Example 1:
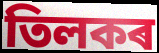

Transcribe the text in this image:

তিলকৰ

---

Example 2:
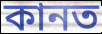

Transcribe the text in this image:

কানত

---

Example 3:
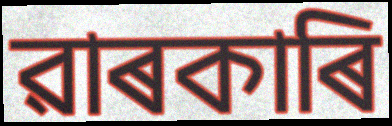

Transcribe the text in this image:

ৱাৰকাৰি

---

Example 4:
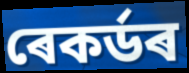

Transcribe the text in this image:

ৰেকৰ্ডৰ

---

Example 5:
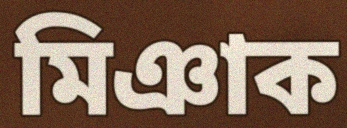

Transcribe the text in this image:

মিঞাক